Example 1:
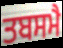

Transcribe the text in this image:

ਤਬਸਮੈ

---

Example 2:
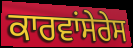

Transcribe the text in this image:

ਕਾਰਵਾਂਸੇਰੇਸ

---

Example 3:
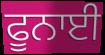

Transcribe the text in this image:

ਫੂਨਾਈ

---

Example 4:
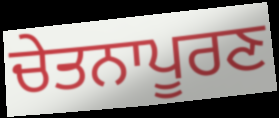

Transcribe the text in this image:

ਚੇਤਨਾਪੂਰਣ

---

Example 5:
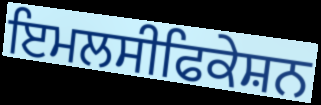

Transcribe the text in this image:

ਇਮਲਸੀਫਿਕੇਸ਼ਨ